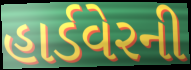
હાર્ડવેરની